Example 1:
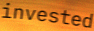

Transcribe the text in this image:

invested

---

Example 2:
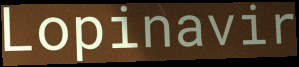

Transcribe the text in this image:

Lopinavir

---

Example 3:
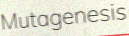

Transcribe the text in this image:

Mutagenesis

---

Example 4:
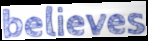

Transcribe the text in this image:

believes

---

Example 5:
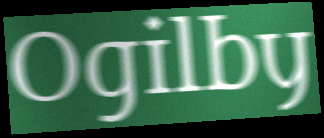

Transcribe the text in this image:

Ogilby